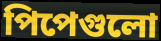
পিপেগুলো